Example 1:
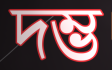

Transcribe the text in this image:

দম্ভ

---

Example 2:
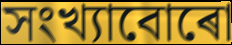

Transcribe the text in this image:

সংখ্যাবোৰো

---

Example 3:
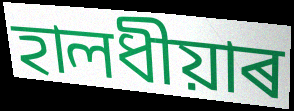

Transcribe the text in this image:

হালধীয়াৰ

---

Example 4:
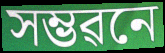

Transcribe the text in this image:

সম্ভৱনে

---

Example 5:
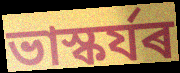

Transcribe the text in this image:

ভাস্কৰ্যৰ